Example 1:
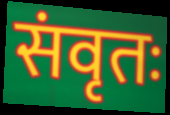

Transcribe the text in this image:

संवृतः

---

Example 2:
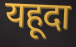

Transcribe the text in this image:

यहूदा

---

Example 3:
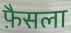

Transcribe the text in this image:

फ़ैसला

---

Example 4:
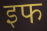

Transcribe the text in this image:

इफ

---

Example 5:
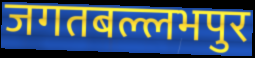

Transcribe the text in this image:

जगतबल्लभपुर